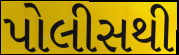
પોલીસથી